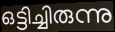
ഒട്ടിച്ചിരുന്നു